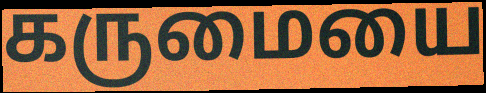
கருமையை